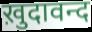
ख़ुदावन्द